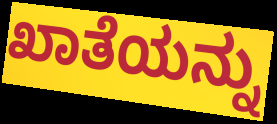
ಖಾತೆಯನ್ನು